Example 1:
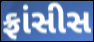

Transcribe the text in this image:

ફ્રાંસીસ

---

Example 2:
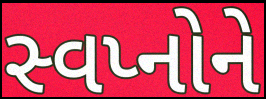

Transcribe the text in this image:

સ્વપ્નોને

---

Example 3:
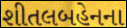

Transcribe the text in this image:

શીતલબહેનના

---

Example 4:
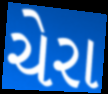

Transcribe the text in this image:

ચેરા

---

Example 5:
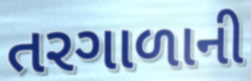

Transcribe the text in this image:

તરગાળાની